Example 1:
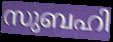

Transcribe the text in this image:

സുബഹി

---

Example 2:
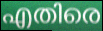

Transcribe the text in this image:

എതിരെ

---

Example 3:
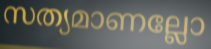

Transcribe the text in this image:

സത്യമാണല്ലോ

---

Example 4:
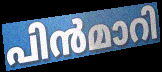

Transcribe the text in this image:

പിൻമാറി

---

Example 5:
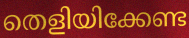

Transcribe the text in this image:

തെളിയിക്കേണ്ട